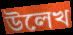
উলেখ